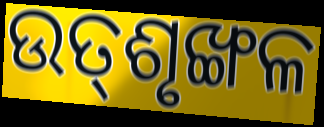
ଉତ୍‌ଶୃଙ୍ଖଳ